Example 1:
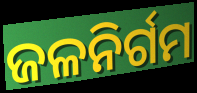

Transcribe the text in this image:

ଜଳନିର୍ଗମ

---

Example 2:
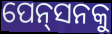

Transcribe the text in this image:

ପେନ୍‌ସନକୁ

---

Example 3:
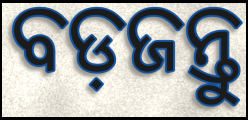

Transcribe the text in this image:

ବଡ଼ଜନ୍ତୁ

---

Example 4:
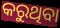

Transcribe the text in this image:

କରୁଥିବା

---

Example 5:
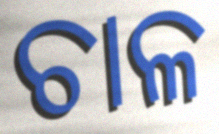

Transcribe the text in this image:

ଚାଳ